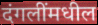
दंगलींमधील